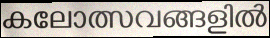
കലോത്സവങ്ങളിൽ